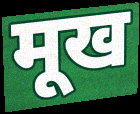
मूख